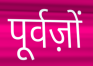
पूर्वज़ों